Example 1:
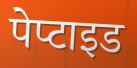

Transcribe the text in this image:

पेप्टाइड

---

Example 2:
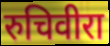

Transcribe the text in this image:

रुचिवीरा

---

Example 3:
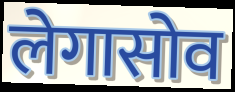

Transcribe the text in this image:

लेगासोव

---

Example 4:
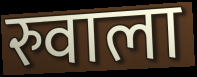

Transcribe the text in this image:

रुवाला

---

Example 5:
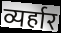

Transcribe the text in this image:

व्यर्हार